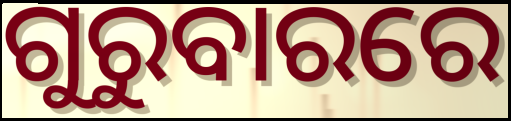
ଗୁରୁବାରରେ